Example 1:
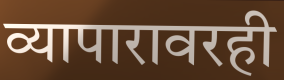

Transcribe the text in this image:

व्यापारावरही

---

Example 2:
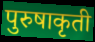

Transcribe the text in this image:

पुरुषाकृती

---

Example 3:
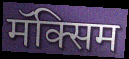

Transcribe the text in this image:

मॅक्सिम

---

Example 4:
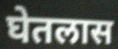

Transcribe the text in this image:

घेतलास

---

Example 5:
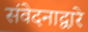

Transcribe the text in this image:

संवेदनाद्वारे